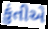
કુંતીએ